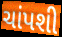
ચાંપશી